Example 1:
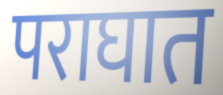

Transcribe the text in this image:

पराघात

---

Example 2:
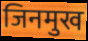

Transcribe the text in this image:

जिनमुख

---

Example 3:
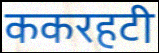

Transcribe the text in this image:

ककरहटी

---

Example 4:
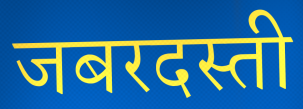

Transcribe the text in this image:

जबरदस्ती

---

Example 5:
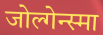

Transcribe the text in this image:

जोल्गेन्स्मा